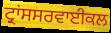
ਟ੍ਰਾਂਸਸਰਵਾਈਕਲ